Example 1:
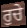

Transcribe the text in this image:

ਰੁਚੇ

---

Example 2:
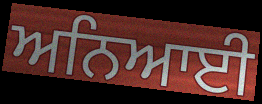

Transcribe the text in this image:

ਅਨਿਆਈ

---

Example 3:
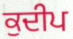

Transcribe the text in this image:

ਕੁਦੀਪ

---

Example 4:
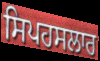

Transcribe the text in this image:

ਸਿਪਹਸਲਾਰ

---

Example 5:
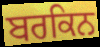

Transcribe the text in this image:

ਬਰਕਿਨ